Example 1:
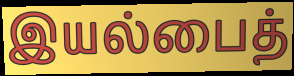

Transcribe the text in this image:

இயல்பைத்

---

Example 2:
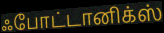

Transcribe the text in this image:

ஃபோட்டானிக்ஸ்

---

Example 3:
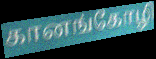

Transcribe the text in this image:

கானங்கோழி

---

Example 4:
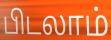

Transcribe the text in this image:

பிடலாம்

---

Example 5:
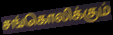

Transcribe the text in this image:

சங்கொலிக்கும்